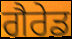
ਗੈਰੇਡ